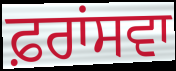
ਫ਼ਰਾਂਸਵਾ